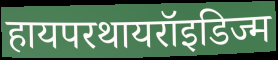
हायपरथायरॉइडिज्म